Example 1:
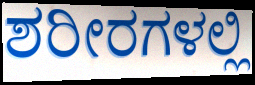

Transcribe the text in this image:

ಶರೀರಗಳಲ್ಲಿ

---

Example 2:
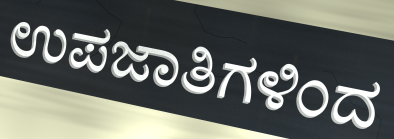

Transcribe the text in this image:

ಉಪಜಾತಿಗಳಿಂದ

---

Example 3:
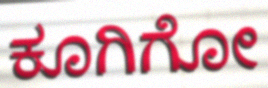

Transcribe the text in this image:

ಕೂಗಿಗೋ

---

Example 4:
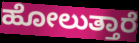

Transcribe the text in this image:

ಹೋಲುತ್ತಾರೆ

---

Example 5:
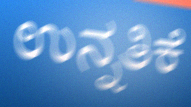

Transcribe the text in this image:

ಉನ್ನತಿಕೆ